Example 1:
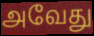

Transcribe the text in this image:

அவேது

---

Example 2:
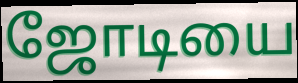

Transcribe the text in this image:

ஜோடியை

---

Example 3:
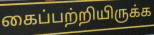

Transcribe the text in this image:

கைப்பற்றியிருக்க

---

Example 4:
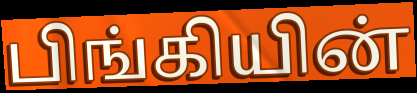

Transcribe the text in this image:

பிங்கியின்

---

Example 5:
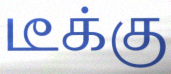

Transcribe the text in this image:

டீக்கு